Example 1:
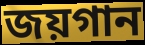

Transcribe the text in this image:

জয়গান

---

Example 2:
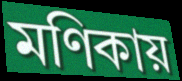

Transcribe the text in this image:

মণিকায়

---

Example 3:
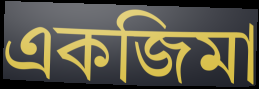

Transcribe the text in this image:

একজিমা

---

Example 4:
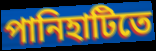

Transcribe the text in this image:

পানিহাটিতে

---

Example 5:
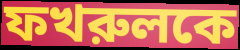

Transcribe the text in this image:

ফখরুলকে